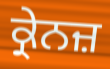
ਕ੍ਰੇਨਜ਼